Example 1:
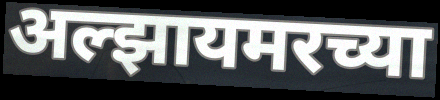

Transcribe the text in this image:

अल्झायमरच्या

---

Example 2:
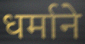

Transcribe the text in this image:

धर्माने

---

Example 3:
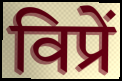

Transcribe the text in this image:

विप्रें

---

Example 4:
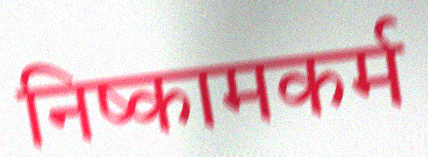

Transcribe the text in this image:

निष्कामकर्म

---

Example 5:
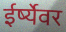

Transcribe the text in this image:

ईर्ष्येवर